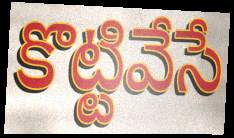
కొట్టివేసే